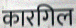
कारगिल